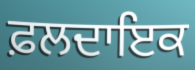
ਫ਼ਲਦਾਇਕ